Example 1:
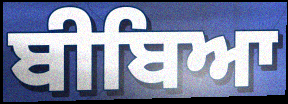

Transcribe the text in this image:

ਬੀਬਿਆ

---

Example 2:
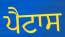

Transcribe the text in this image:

ਪੈਟਾਸ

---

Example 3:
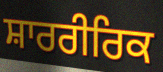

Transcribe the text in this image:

ਸ਼ਾਰਰੀਰਿਕ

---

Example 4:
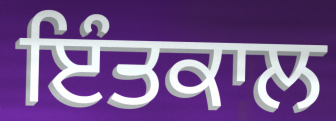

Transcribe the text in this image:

ਇੰਤਕਾਲ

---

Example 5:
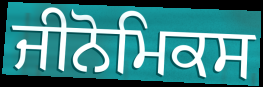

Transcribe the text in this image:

ਜੀਨੋਮਿਕਸ